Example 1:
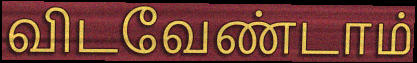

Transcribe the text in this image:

விடவேண்டாம்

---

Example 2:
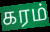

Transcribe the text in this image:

கரம்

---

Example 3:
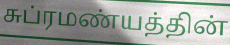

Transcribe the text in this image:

சுப்ரமண்யத்தின்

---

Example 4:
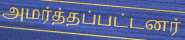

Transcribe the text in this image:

அமர்த்தப்பட்டனர்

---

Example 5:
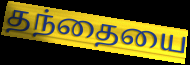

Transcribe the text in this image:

தந்தையை